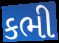
કભી